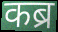
कब्र